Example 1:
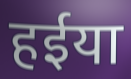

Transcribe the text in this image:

हईया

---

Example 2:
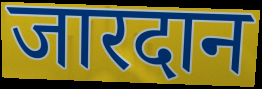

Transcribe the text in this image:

जारदान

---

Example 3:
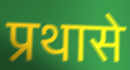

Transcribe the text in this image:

प्रथासे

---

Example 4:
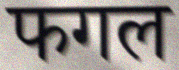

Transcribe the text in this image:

फगल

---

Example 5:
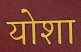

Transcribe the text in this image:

योशा